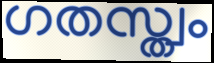
ഗതസ്ത്വം